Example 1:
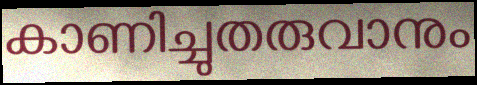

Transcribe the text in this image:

കാണിച്ചുതരുവാനും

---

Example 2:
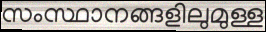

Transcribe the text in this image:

സംസ്ഥാനങ്ങളിലുമുള്ള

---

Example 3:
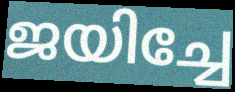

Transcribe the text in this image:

ജയിച്ചേ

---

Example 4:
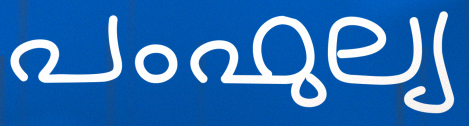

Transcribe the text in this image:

പംഫുല്യ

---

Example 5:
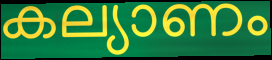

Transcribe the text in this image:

കല്യാണം